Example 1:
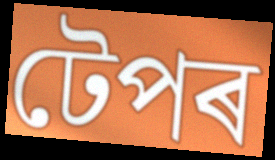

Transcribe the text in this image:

টেপৰ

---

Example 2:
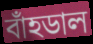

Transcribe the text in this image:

বাঁহডাল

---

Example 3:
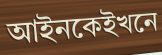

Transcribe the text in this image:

আইনকেইখনে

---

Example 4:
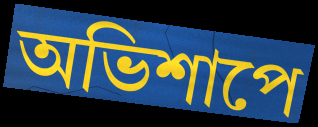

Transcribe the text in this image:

অভিশাপে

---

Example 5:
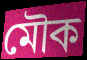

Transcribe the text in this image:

মৌক